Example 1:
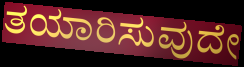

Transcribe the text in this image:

ತಯಾರಿಸುವುದೇ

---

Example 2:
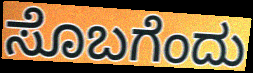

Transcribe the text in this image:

ಸೊಬಗೆಂದು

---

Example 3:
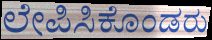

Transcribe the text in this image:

ಲೇಪಿಸಿಕೊಂಡರು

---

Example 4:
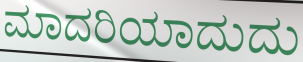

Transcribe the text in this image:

ಮಾದರಿಯಾದುದು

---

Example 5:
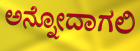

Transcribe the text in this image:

ಅನ್ನೋದಾಗಲಿ